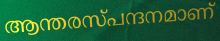
ആന്തരസ്പന്ദനമാണ്